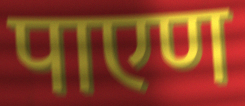
पाएण